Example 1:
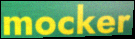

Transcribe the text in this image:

mocker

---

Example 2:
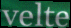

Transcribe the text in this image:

velte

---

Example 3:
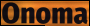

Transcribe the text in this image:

Onoma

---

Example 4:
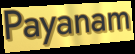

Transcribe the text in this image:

Payanam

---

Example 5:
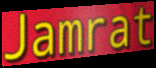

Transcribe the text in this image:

Jamrat